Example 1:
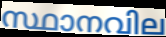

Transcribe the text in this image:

സ്ഥാനവില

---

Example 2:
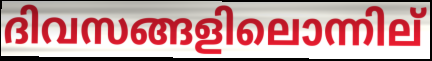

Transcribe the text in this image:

ദിവസങ്ങളിലൊന്നില്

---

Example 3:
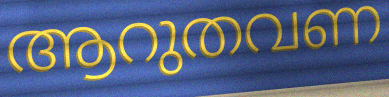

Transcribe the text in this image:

ആറുതവണ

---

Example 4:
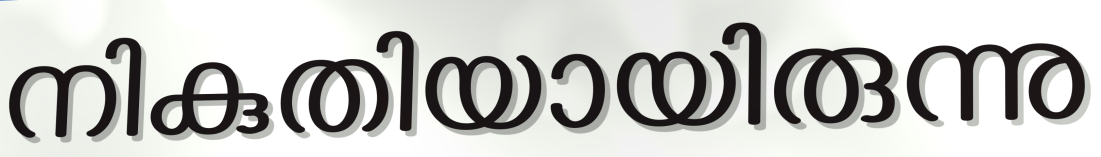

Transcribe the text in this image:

നികുതിയായിരുന്നു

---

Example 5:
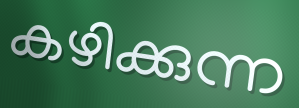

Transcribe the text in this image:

കഴിക്കുന്ന